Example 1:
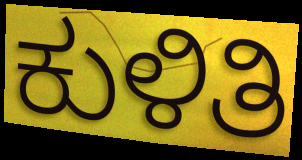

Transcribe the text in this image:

ಕುಳಿತಿ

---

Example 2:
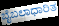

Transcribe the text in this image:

ಬೈಬಲಾಧಾರಿತ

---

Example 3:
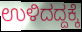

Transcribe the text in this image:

ಉಳಿದದ್ದಕ್ಕೆ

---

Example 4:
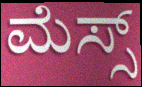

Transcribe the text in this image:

ಮೆಸ್ಸ್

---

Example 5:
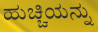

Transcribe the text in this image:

ಹುಚ್ಚಿಯನ್ನು